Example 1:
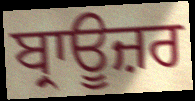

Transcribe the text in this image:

ਬ੍ਰਾਊਜ਼ਰ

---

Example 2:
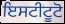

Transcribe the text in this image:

ਇਸਟੀਟੂਟੋ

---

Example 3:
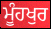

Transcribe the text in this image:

ਮੂੰਹਖੁਰ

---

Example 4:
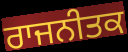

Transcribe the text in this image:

ਰਾਜਨੀਤਕ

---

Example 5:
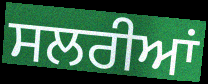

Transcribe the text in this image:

ਸਲਰੀਆਂ